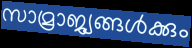
സാമ്രാജ്യങ്ങൾക്കും